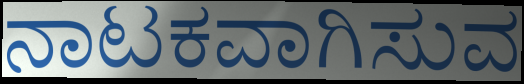
ನಾಟಕವಾಗಿಸುವ